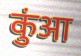
कुंआ